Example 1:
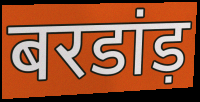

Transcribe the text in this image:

बरडांड़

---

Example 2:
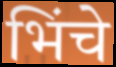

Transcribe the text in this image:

भिंचे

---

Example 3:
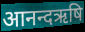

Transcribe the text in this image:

आनन्दऋषि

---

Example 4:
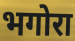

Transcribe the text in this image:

भगोरा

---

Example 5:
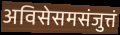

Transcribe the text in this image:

अविसेसमसंजुत्तं